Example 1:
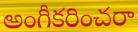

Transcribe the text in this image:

అంగీకరించరా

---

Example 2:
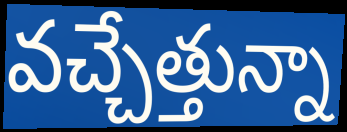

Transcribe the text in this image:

వచ్చేత్తున్నా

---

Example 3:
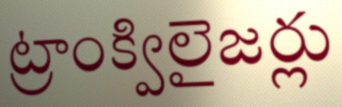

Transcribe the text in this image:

ట్రాంక్విలైజర్లు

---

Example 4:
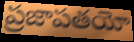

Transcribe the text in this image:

ప్రజాపతయో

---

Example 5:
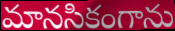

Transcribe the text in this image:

మానసికంగాను